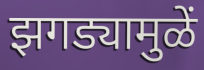
झगड्यामुळें